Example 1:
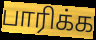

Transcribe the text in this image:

பாரிக்க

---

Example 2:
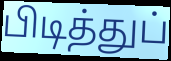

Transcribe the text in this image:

பிடித்துப்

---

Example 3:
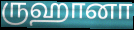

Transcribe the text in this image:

ருஹானா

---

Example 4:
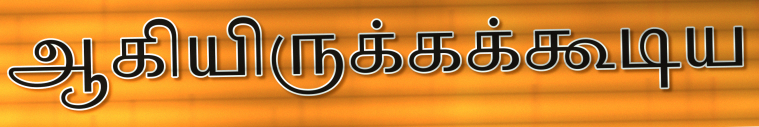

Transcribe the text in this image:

ஆகியிருக்கக்கூடிய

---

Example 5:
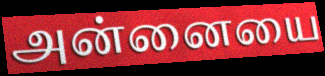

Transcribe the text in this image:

அன்னையை